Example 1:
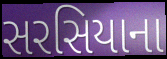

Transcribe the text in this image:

સરસિયાના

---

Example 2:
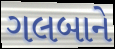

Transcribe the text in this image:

ગલબાને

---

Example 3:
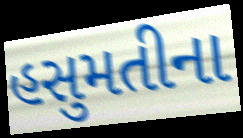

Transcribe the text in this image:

હસુમતીના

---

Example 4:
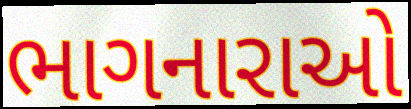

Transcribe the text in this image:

ભાગનારાઓ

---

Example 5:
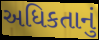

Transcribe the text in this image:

અધિકતાનું